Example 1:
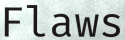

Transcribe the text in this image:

Flaws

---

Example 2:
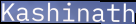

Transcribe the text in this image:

Kashinath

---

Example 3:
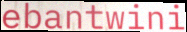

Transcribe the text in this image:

ebantwini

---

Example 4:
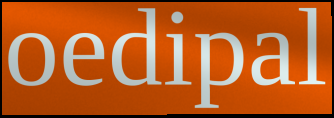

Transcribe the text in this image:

oedipal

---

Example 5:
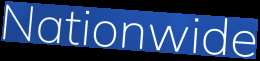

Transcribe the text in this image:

Nationwide